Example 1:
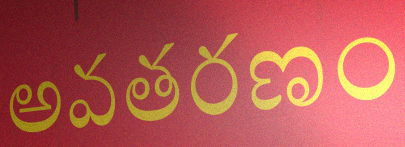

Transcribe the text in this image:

అవతరణం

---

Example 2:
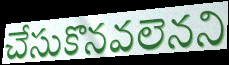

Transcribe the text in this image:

చేసుకొనవలెనని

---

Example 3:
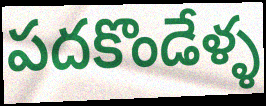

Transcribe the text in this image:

పదకొండేళ్ళ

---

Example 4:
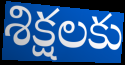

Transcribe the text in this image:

శిక్షలకు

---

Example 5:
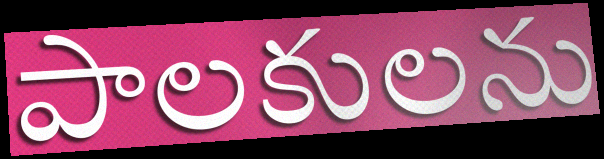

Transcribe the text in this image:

పాలకులను